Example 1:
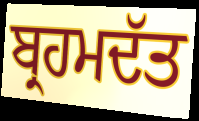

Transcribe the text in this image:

ਬ੍ਰਹਮਦੱਤ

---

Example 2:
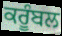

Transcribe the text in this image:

ਕਰੂੰਬਲ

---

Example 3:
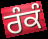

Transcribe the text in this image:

ਰੰਕੰ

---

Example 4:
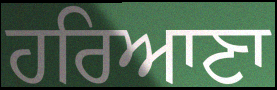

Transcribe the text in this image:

ਹਰਿਆਣਾ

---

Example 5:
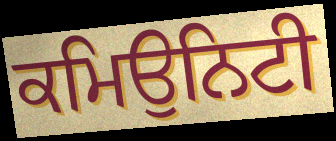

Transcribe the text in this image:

ਕਮਿਉਨਿਟੀ